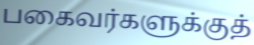
பகைவர்களுக்குத்